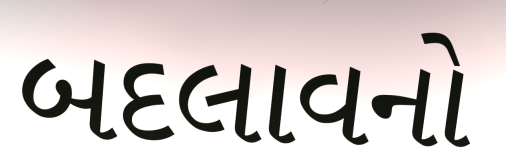
બદલાવનો